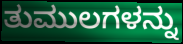
ತುಮುಲಗಳನ್ನು